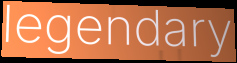
legendary